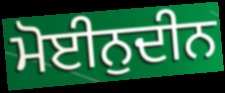
ਮੋਈਨੁਦੀਨ